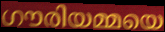
ഗൗരിയമ്മയെ